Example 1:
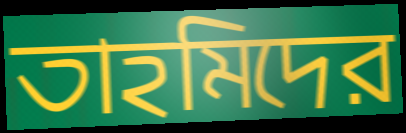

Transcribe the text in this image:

তাহমিদের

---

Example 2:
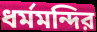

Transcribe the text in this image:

ধর্মমন্দির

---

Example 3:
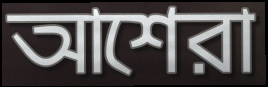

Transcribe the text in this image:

আশেরা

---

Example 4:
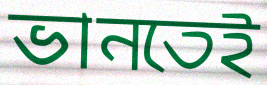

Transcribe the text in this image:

ভানতেই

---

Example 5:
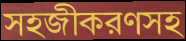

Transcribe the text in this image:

সহজীকরণসহ